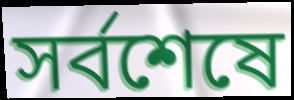
সর্বশেষে